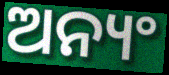
ଅନ୍ୟଂ